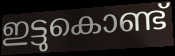
ഇട്ടുകൊണ്ട്